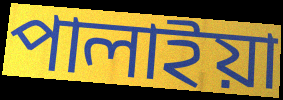
পালাইয়া